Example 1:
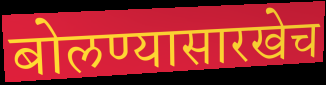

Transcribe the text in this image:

बोलण्यासारखेच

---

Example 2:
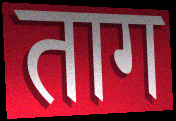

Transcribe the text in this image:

ताग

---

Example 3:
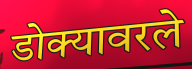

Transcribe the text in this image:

डोक्यावरले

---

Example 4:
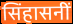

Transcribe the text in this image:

सिंहासनीं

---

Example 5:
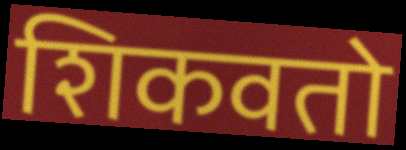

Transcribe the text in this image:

शिकवतो